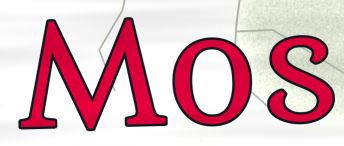
Mos